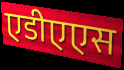
एडीएएस